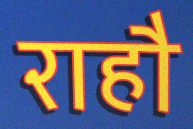
राहौ